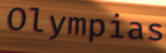
Olympias